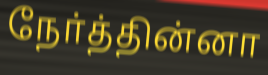
நேர்த்தின்னா